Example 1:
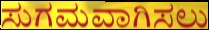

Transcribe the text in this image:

ಸುಗಮವಾಗಿಸಲು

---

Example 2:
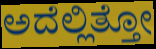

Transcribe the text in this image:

ಅದೆಲ್ಲಿತ್ತೋ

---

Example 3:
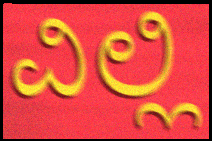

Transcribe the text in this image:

ವಿಲ್ಲಿ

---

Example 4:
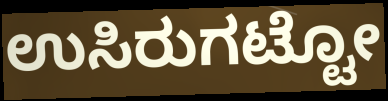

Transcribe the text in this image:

ಉಸಿರುಗಟ್ಟೋ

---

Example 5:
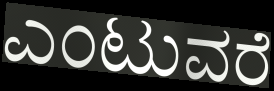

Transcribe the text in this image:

ಎಂಟುವರೆ